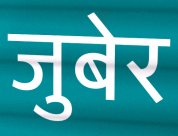
जुबेर